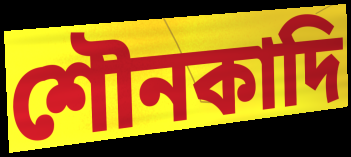
শৌনকাদি